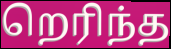
றெரிந்த